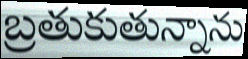
బ్రతుకుతున్నాను